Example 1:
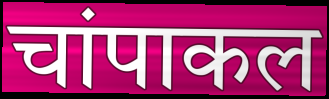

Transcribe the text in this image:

चांपाकल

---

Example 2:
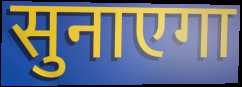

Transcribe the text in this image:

सुनाएगा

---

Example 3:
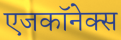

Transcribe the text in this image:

एजकॉनेक्स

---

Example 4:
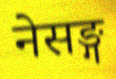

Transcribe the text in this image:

नेसङ्ग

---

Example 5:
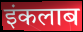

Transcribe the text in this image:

इंकलाब